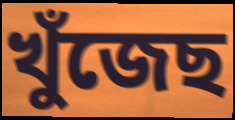
খুঁজেছ